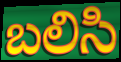
బలిసి